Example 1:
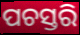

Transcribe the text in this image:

ପଚସ୍ତରି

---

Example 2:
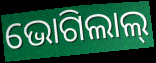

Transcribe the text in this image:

ଭୋଗିଲାଲ୍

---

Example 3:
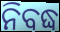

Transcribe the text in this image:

ନିବଦ୍ଧ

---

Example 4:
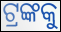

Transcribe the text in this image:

ଟ୍ରଙ୍କକୁ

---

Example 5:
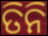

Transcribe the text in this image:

ତିନି